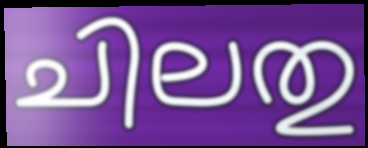
ചിലതു